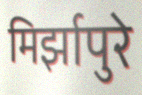
मिर्झापुरे